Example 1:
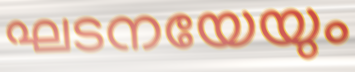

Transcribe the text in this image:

ഘടനയേയും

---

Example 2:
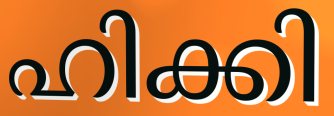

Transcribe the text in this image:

ഹിക്കി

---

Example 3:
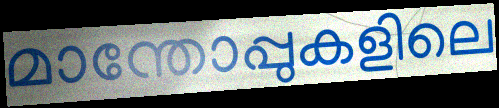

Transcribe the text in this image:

മാന്തോപ്പുകളിലെ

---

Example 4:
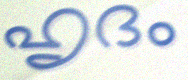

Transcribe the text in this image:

ഹൃദം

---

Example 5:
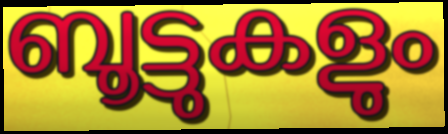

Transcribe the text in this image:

ബൂട്ടുകളും